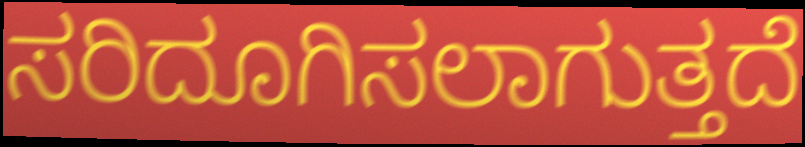
ಸರಿದೂಗಿಸಲಾಗುತ್ತದೆ